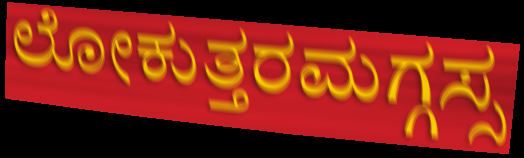
ಲೋಕುತ್ತರಮಗ್ಗಸ್ಸ